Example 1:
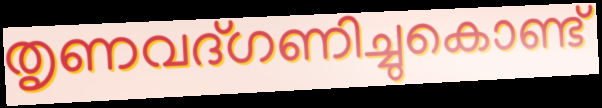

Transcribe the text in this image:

തൃണവദ്ഗണിച്ചുകൊണ്ട്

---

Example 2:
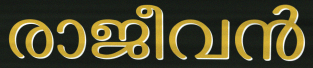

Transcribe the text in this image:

രാജീവൻ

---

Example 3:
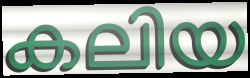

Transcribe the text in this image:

കലിയ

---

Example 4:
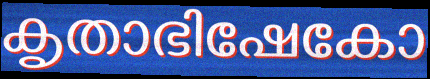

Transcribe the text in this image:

കൃതാഭിഷേകോ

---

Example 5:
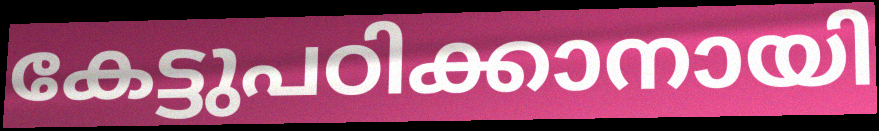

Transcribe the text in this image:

കേട്ടുപഠിക്കാനായി